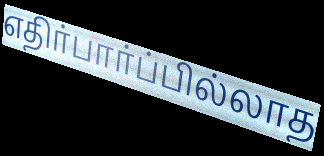
எதிர்பார்ப்பில்லாத